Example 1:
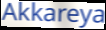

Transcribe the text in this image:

Akkareya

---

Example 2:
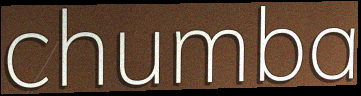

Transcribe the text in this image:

chumba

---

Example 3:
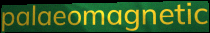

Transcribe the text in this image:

palaeomagnetic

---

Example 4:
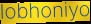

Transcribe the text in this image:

lobhoniyo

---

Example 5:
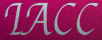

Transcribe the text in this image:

IACC